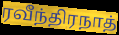
ரவீந்திரநாத்